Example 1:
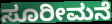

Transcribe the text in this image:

ಸೂರೀಮನೆ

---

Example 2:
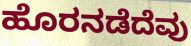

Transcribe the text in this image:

ಹೊರನಡೆದೆವು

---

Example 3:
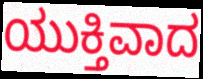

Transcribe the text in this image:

ಯುಕ್ತಿವಾದ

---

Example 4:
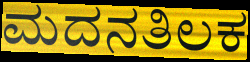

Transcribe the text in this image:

ಮದನತಿಲಕ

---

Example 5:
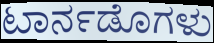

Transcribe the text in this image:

ಟಾರ್ನಡೊಗಳು